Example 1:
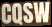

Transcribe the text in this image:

CQSW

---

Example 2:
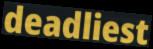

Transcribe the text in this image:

deadliest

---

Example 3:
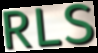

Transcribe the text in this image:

RLS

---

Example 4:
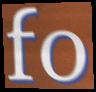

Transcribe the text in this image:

fo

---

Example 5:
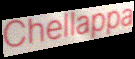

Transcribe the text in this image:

Chellappa